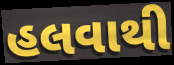
હલવાથી